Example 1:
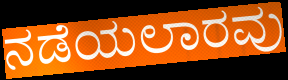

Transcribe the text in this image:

ನಡೆಯಲಾರವು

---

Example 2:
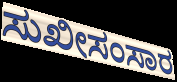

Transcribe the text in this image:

ಸುಖೀಸಂಸಾರ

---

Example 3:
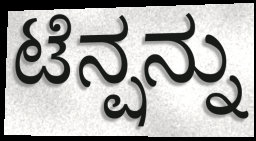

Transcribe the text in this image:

ಟೆನ್ಷನ್ನು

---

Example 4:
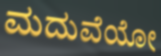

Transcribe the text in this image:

ಮದುವೆಯೋ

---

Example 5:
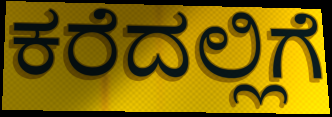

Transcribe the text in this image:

ಕರೆದಲ್ಲಿಗೆ